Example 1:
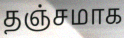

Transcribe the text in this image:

தஞ்சமாக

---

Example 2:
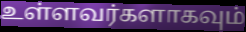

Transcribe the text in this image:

உள்ளவர்களாகவும்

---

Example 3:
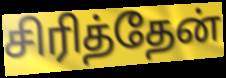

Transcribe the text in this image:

சிரித்தேன்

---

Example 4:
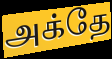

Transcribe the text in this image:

அக்தே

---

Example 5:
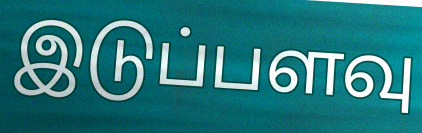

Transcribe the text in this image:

இடுப்பளவு